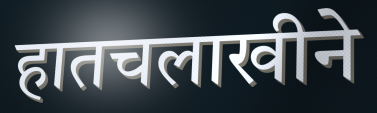
हातचलाखीने